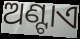
ଅଣ୍ଟାଏ